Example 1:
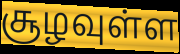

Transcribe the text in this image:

சூழவுள்ள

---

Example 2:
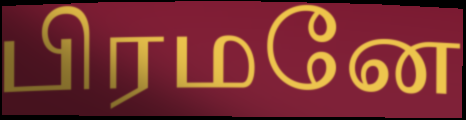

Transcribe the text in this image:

பிரமனே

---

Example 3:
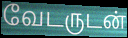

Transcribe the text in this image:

வேடருடன்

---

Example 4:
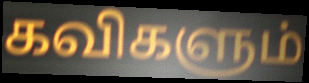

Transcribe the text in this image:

கவிகளும்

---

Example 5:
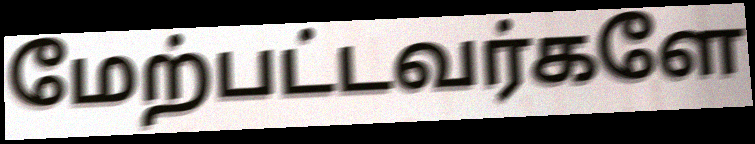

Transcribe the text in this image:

மேற்பட்டவர்களே